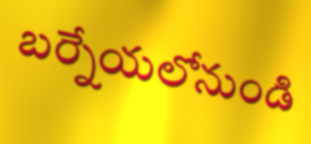
బర్నేయలోనుండి